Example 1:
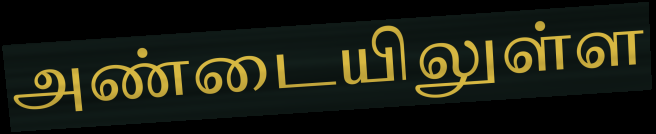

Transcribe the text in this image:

அண்டையிலுள்ள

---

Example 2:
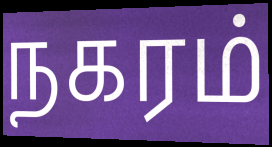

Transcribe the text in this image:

நகரம்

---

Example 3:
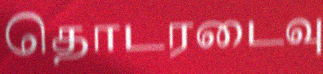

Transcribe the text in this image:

தொடரடைவு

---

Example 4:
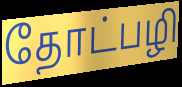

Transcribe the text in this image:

தோட்பழி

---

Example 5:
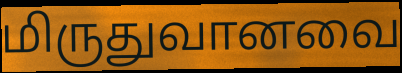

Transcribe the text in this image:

மிருதுவானவை